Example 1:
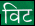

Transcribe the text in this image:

विट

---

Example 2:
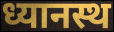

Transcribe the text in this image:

ध्यानस्थ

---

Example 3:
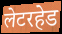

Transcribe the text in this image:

लेटरहेड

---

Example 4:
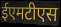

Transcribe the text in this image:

ईएमटीएस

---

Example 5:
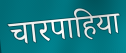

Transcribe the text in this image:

चारपाहिया